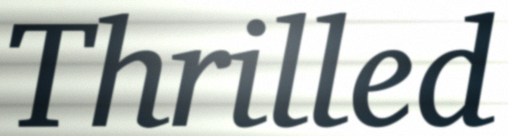
Thrilled